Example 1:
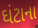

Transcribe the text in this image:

ઘંટાના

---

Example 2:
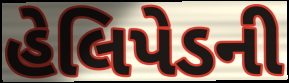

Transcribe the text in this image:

હેલિપેડની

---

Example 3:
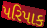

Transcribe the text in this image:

પરિપાક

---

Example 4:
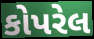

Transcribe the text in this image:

કોપરેલ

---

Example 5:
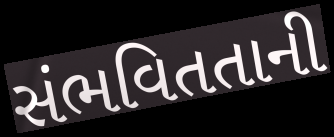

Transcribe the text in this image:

સંભવિતતાની